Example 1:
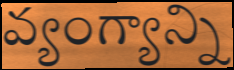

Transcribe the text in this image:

వ్యంగ్యాన్ని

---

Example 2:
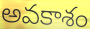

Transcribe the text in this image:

అవకాశం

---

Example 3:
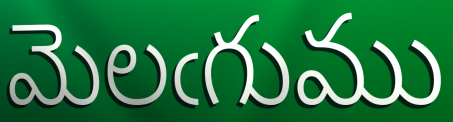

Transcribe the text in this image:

మెలఁగుము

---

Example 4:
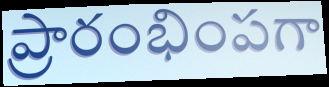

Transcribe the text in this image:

ప్రారంభింపగా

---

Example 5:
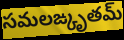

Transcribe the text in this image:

సమలఙ్కృతమ్